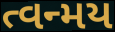
ત્વન્મય